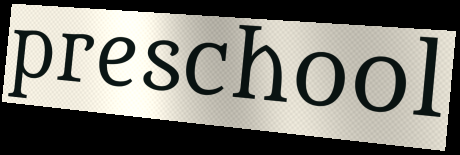
preschool